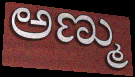
ಅಣ್ಮು